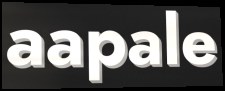
aapale